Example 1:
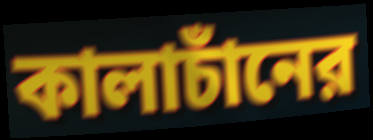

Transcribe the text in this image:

কালাচাঁনের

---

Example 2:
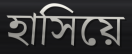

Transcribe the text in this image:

হাসিয়ে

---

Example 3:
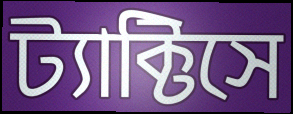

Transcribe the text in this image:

ট্যাক্টিসে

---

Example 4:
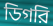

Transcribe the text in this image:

ডিগরি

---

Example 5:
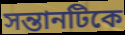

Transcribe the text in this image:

সন্তানটিকে